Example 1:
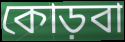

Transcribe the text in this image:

কোড়বা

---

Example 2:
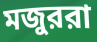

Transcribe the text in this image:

মজুররা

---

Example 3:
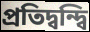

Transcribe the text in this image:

প্রতিদ্বন্দ্বি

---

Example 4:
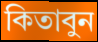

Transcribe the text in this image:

কিতাবুন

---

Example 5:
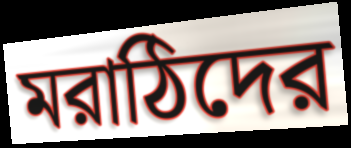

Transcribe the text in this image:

মরাঠিদের